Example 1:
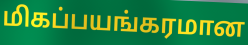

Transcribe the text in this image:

மிகப்பயங்கரமான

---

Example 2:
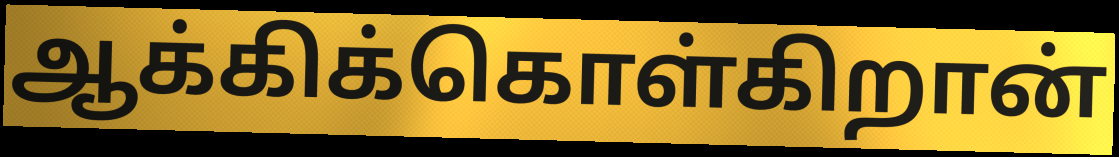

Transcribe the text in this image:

ஆக்கிக்கொள்கிறான்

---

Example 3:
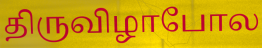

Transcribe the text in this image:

திருவிழாபோல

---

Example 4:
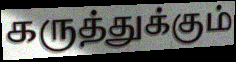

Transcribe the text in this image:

கருத்துக்கும்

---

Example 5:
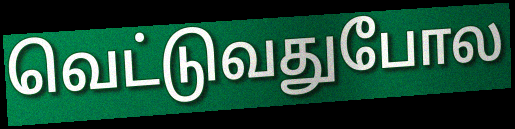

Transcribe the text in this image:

வெட்டுவதுபோல